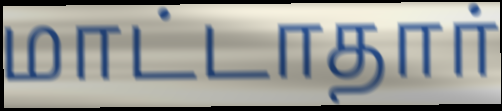
மாட்டாதார்